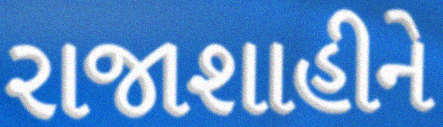
રાજાશાહીને